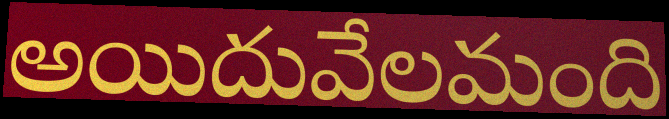
అయిదువేలమంది